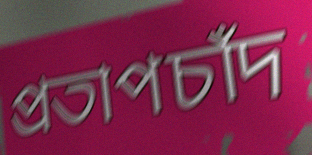
প্রতাপচাঁদ